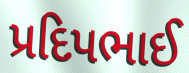
પ્રદિપભાઈ